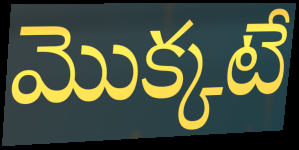
మొక్కటే